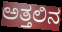
ಅತ್ತಲಿನ